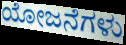
ಯೋಜನೆಗಳು